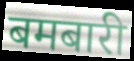
बमबारी